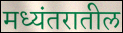
मध्यंतरातील